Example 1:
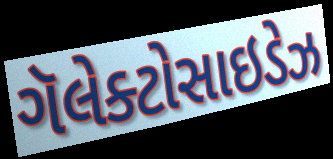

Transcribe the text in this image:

ગૅલેક્ટોસાઇડેઝ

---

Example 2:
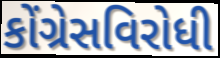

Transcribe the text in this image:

કોંગ્રેસવિરોધી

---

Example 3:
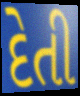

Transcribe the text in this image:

દેતી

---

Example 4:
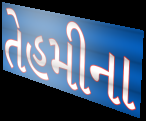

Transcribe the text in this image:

તેહમીના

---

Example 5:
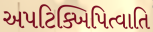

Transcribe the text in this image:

અપટિક્ખિપિત્વાતિ